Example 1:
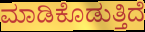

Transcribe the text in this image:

ಮಾಡಿಕೊಡುತ್ತಿದೆ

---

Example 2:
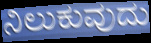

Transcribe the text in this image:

ನಿಲುಕುವುದು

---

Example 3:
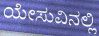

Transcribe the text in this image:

ಯೇಸುವಿನಲ್ಲಿ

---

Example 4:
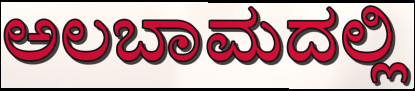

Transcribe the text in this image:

ಅಲಬಾಮದಲ್ಲಿ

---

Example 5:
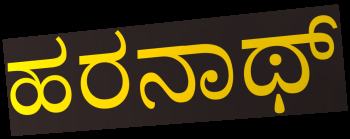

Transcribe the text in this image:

ಹರನಾಥ್